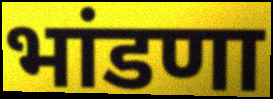
भांडणा